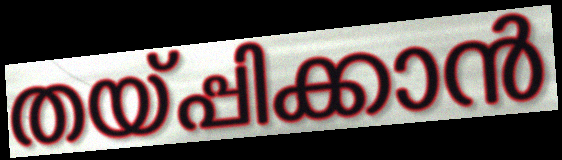
തയ്പ്പിക്കാൻ